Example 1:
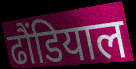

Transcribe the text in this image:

ढौंडियाल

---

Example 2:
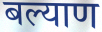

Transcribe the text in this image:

बल्याण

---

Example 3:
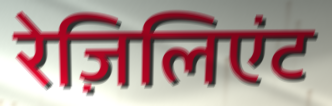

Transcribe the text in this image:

रेज़िलिएंट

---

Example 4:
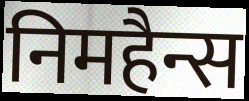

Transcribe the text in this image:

निमहैन्स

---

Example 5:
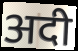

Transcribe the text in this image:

अदी